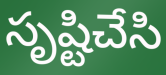
సృష్టిచేసి